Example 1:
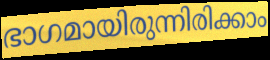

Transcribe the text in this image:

ഭാഗമായിരുന്നിരിക്കാം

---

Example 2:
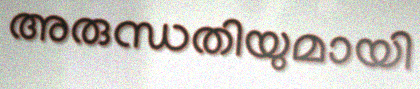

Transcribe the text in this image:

അരുന്ധതിയുമായി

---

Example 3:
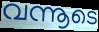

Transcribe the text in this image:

വന്നൂടെ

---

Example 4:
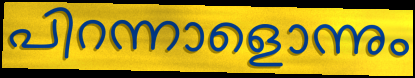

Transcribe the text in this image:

പിറന്നാളൊന്നും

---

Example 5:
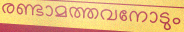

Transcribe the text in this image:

രണ്ടാമത്തവനോടും